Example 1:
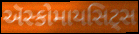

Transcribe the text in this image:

ઍસ્કોમાયસિટ્સ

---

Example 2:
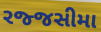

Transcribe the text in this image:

રજ્જસીમા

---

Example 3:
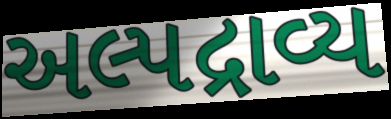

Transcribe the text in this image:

અલ્પદ્રાવ્ય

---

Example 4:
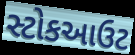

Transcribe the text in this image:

સ્ટોકઆઉટ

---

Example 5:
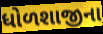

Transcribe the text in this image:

ધોળશાજીના